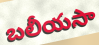
బలీయసా